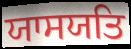
ਯਾਸਯਤਿ